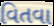
વિતવા